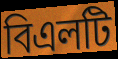
বিএলটি